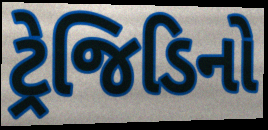
ટ્રેજિડિનો